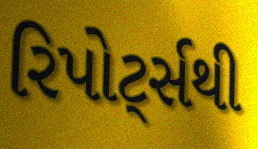
રિપોર્ટ્સથી